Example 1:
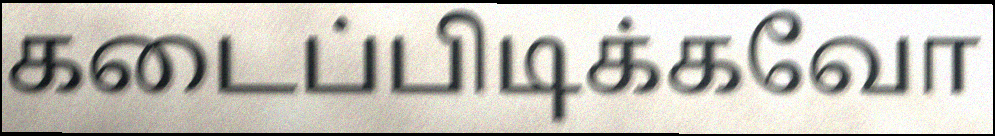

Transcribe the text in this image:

கடைப்பிடிக்கவோ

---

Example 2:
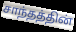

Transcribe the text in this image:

சாந்தத்தின்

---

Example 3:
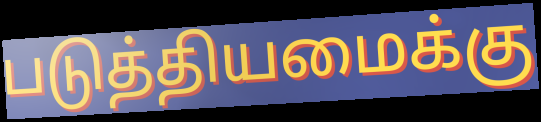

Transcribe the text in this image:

படுத்தியமைக்கு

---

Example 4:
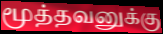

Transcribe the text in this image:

மூத்தவனுக்கு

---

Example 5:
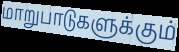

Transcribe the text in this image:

மாறுபாடுகளுக்கும்